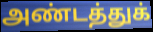
அண்டத்துக்